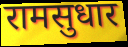
रामसुधार